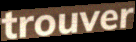
trouver